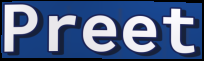
Preet